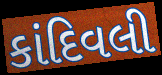
કાંદિવલી